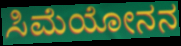
ಸಿಮೆಯೋನನ